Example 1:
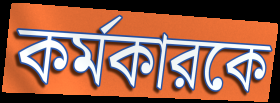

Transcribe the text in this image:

কর্মকারকে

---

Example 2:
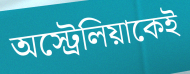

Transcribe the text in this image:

অস্ট্রেলিয়াকেই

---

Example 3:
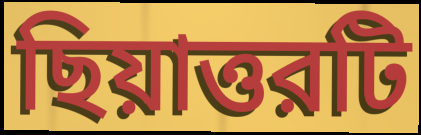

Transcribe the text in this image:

ছিয়াত্তরটি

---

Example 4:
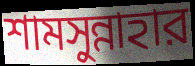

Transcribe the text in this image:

শামসুন্নাহার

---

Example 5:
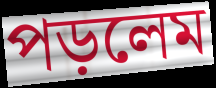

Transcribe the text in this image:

পড়লেম